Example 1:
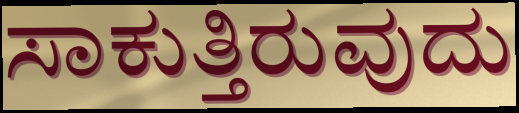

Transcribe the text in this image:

ಸಾಕುತ್ತಿರುವುದು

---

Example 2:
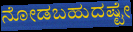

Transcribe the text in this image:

ನೋಡಬಹುದಷ್ಟೇ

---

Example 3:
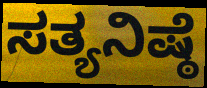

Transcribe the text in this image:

ಸತ್ಯನಿಷ್ಠೆ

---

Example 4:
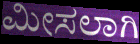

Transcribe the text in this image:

ಮೀಸಲಾಗಿ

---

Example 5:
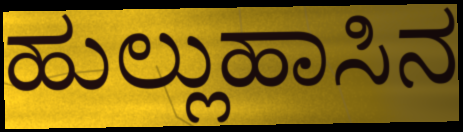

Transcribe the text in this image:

ಹುಲ್ಲುಹಾಸಿನ